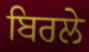
ਬਿਰਲੇ